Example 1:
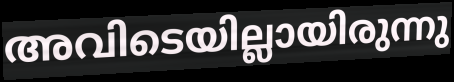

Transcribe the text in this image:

അവിടെയില്ലായിരുന്നു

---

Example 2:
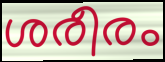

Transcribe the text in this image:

ശരീരം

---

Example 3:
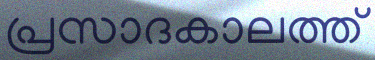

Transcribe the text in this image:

പ്രസാദകാലത്ത്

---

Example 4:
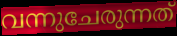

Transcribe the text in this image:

വന്നുചേരുന്നത്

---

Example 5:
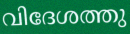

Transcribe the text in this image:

വിദേശത്തു